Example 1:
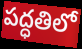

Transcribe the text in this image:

పద్ధతిలో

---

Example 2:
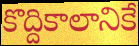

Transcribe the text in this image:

కొద్దికాలానికే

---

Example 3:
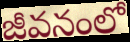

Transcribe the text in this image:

జీవనంలో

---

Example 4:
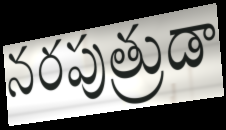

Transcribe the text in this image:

నరపుత్రుడా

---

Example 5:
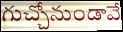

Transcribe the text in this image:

గుచ్చోనుండావే